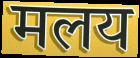
मलय